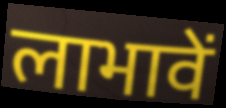
लाभावें